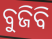
ବୁଜିବି